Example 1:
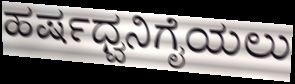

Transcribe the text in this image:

ಹರ್ಷಧ್ವನಿಗೈಯಲು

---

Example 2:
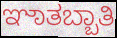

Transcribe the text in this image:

ಞಾತಬ್ಬಾತಿ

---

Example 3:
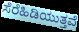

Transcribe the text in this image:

ಸೆರೆಹಿಡಿಯುತ್ತವೆ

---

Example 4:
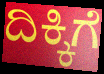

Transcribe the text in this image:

ದಿಕ್ಕಿಗೆ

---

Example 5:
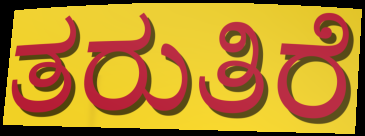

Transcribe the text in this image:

ತರುತಿರೆ